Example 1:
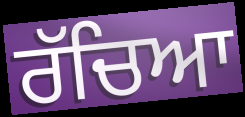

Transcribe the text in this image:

ਰੱਚਿਆ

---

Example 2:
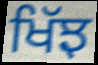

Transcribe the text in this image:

ਖਿੱਝ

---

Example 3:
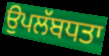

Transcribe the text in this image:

ਉਪਲੱਬਧਤਾ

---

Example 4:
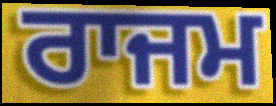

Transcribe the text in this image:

ਰਾਜਮ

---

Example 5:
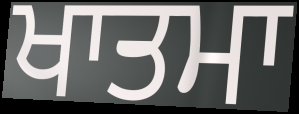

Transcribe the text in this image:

ਖਾਤਮਾ